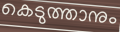
കെടുത്താനും